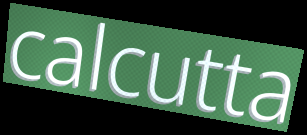
calcutta